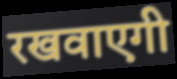
रखवाएगी